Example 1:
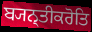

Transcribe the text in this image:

ਬ੍ਯਨ੍ਤੀਕਰੋਤਿ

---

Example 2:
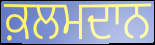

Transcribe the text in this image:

ਕ਼ਲਮਦਾਨ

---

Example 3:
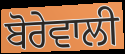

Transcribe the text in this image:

ਬੋਰੇਵਾਲੀ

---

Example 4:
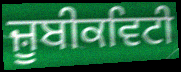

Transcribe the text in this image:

ਜ਼ੂਬੀਕਵਿਟੀ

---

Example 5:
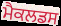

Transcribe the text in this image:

ਮੈਕਲਡਸ